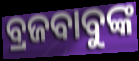
ବ୍ରଜବାବୁଙ୍କ